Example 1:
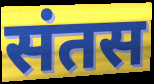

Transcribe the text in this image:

संतस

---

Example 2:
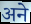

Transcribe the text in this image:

अने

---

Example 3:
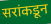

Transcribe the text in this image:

सरांकडून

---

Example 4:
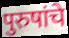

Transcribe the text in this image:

पुरुषांचे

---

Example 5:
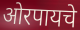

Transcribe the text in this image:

ओरपायचे